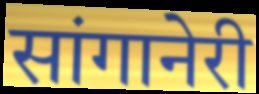
सांगानेरी